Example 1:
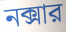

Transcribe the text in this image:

নক্সার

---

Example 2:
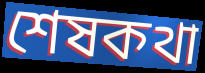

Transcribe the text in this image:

শেষকথা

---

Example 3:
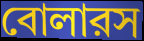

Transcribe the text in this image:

বোলারস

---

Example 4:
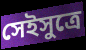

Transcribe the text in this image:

সেইসুত্রে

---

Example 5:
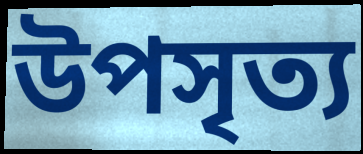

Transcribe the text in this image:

উপসৃত্য